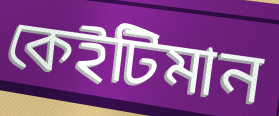
কেইটিমান